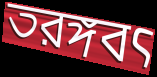
তরঙ্গবৎ